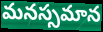
మనస్సమాన